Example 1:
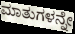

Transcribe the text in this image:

ಮಾತುಗಳನ್ನೇ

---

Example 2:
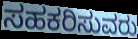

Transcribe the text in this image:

ಸಹಕರಿಸುವರು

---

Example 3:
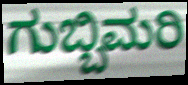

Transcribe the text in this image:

ಗುಬ್ಬಿಮರಿ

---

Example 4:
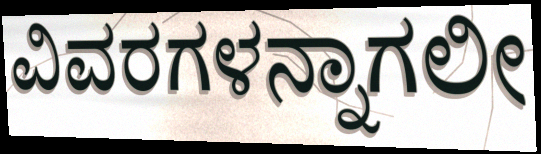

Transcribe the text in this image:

ವಿವರಗಳನ್ನಾಗಲೀ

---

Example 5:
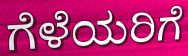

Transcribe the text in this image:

ಗೆಳೆಯರಿಗೆ